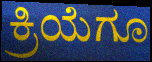
ಕ್ರಿಯೆಗೂ